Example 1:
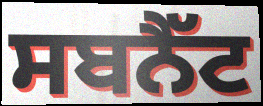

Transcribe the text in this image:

ਸਬਨੈੱਟ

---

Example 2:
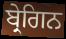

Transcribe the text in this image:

ਬ੍ਰੇਗਿਨ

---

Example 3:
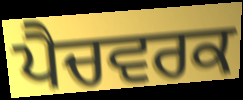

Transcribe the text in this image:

ਪੈਚਵਰਕ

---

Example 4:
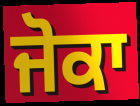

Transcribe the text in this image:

ਜੋਕਾ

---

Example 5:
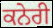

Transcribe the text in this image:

ਕਨੇਰੀ